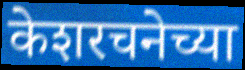
केशरचनेच्या